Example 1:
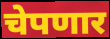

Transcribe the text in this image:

चेपणार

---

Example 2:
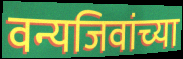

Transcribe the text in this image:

वन्यजिवांच्या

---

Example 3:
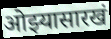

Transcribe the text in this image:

ओझ्यासारखं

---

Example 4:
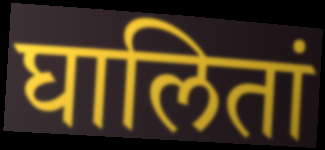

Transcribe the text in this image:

घालितां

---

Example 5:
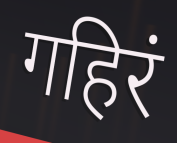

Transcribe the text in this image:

गहिरं